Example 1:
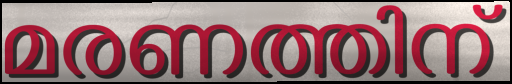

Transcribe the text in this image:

മരണത്തിന്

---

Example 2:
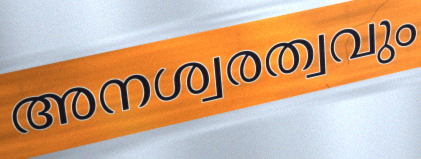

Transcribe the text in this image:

അനശ്വരത്വവും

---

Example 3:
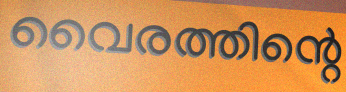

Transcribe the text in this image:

വൈരത്തിന്റെ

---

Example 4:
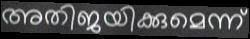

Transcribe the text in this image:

അതിജയിക്കുമെന്ന്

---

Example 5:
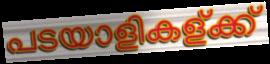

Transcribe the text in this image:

പടയാളികള്ക്ക്